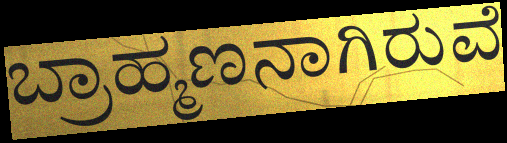
ಬ್ರಾಹ್ಮಣನಾಗಿರುವೆ